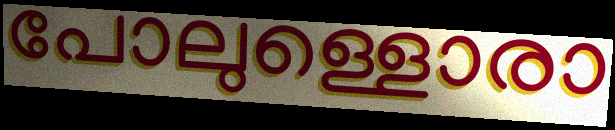
പോലുള്ളൊരാ